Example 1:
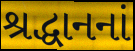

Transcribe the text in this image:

શ્રદ્ધાનનાં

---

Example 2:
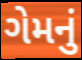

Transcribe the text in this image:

ગેમનું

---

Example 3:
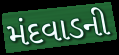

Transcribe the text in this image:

મંદવાડની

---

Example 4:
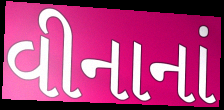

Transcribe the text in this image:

વીનાનાં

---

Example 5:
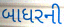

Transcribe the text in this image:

બાધરની